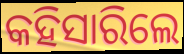
କହିସାରିଲେ